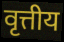
वृत्तीय